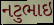
નટુભાઇ